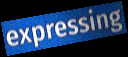
expressing